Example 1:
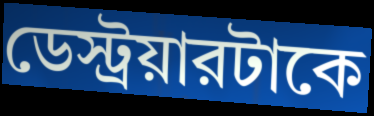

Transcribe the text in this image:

ডেস্ট্রয়ারটাকে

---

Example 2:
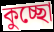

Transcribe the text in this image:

কুচ্ছো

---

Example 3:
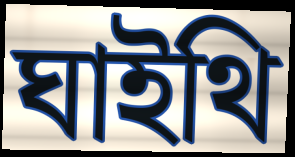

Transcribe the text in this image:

ঘাইথি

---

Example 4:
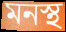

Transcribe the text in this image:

মনস্থ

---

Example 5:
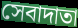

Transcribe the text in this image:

সেবাদাতা